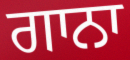
ਗਾਨਾ